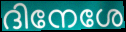
ദിനേശേ